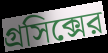
গ্রসিক্সের